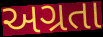
અગ્રતા